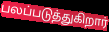
பலப்படுத்துகிறார்